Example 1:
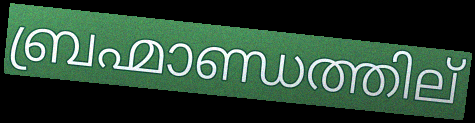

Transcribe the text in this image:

ബ്രഹ്മാണ്ഡത്തില്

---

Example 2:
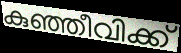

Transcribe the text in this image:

കുഞ്ഞീവിക്ക്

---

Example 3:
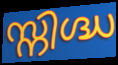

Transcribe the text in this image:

സ്നിഗ്ദ്ധ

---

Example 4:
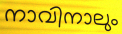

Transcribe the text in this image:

നാവിനാലും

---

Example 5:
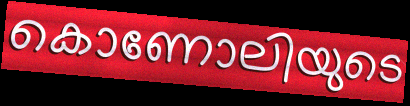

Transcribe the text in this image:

കൊണോലിയുടെ